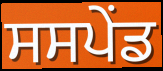
ਸਸਪੇੰਡ